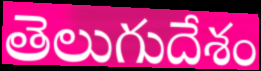
తెలుగుదేశం